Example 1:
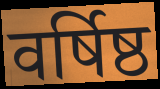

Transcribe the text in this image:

वर्षिष्ठ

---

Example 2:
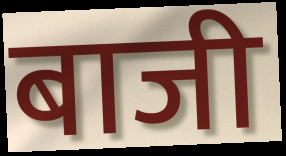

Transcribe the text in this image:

बाजी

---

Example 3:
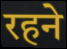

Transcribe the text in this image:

रहने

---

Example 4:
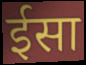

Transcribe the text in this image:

ईसा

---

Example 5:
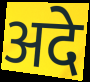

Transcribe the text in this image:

अदे